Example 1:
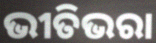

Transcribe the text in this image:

ଭୀତିଭରା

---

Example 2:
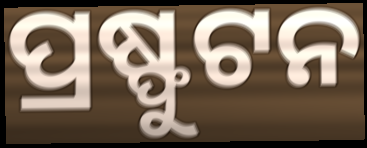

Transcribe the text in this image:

ପ୍ରଷ୍ଫୁଟନ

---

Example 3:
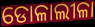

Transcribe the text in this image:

ଡୋଳାଲୀଳା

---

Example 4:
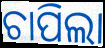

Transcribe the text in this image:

ଚାପିଲା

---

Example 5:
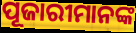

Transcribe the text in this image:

ପୂଜାରୀମାନଙ୍କ